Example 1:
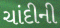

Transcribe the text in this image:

ચાંદીની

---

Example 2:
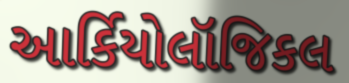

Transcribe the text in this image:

આર્કિયોલૉજિકલ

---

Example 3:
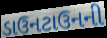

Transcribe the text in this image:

ડાઉનટાઉનની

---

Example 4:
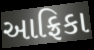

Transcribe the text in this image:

આફ્રિકા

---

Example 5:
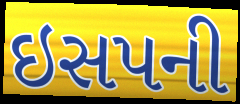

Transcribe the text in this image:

ઇસપની